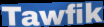
Tawfik